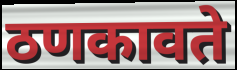
ठणकावते